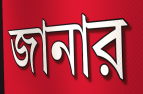
জানার